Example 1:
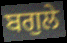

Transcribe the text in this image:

ਬਗੁਲੇ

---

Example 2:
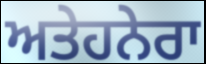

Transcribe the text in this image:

ਅਤੇਹਨੇਰਾ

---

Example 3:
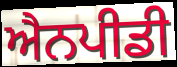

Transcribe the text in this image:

ਐਨਪੀਡੀ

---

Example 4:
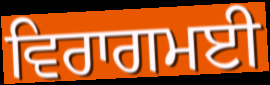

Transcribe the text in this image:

ਵਿਰਾਗਮਈ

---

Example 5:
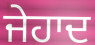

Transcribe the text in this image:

ਜੇਹਾਦ